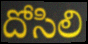
దోసిలి